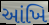
આંખિ